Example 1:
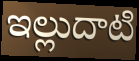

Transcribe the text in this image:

ఇల్లుదాటి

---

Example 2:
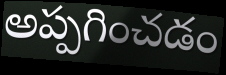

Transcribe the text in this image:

అప్పగించడం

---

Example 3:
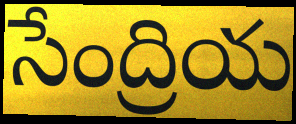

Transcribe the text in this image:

సేంద్రియ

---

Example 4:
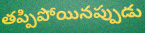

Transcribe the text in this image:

తప్పిపోయినప్పుడు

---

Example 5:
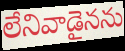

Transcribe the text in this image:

లేనివాడైనను